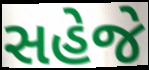
સહેજે